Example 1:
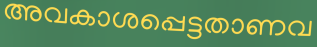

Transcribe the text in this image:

അവകാശപ്പെട്ടതാണവ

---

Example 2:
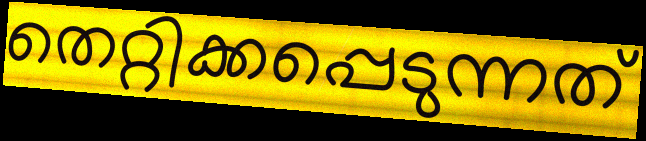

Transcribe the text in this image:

തെറ്റിക്കപ്പെടുന്നത്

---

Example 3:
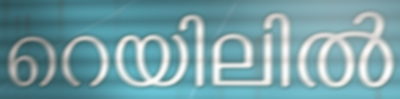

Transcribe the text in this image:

റെയിലിൽ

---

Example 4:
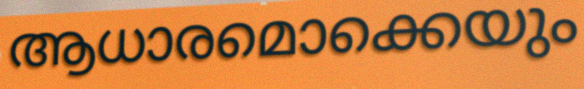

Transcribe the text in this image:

ആധാരമൊക്കെയും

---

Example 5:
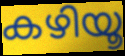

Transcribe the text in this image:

കഴിയൂ